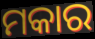
ମକାର